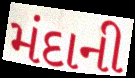
મંદાની